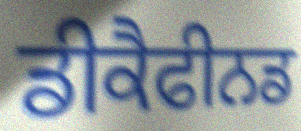
ਡੀਕੈਫੀਨਡ